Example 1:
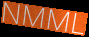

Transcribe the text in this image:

NMML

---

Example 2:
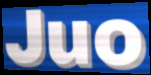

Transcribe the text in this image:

Juo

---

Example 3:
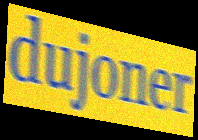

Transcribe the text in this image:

dujoner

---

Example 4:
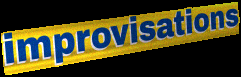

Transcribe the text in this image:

improvisations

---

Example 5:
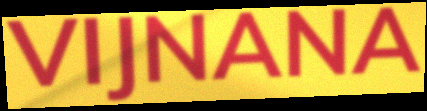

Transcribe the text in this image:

VIJNANA